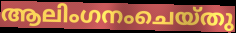
ആലിംഗനംചെയ്തു